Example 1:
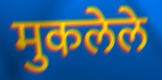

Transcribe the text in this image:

मुकलेले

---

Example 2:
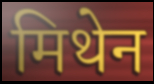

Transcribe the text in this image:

मिथेन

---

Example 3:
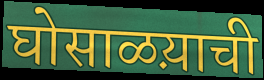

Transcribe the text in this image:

घोसाळय़ाची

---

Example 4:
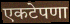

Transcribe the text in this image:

एकटेपणा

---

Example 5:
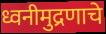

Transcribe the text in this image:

ध्वनीमुद्रणाचे